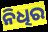
ନିଧିର